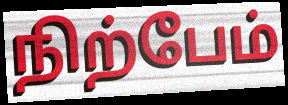
நிற்பேம்